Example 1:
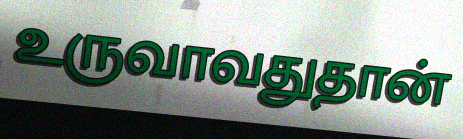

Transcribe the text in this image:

உருவாவதுதான்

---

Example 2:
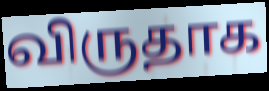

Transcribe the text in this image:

விருதாக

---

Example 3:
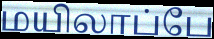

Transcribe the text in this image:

மயிலாப்பே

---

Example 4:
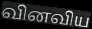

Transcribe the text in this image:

வினவிய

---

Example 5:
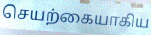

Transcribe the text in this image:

செயற்கையாகிய